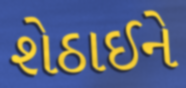
શેઠાઈને